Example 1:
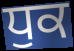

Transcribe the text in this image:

ਧੁਕ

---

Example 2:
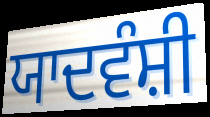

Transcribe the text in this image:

ਯਾਦਵੰਸ਼ੀ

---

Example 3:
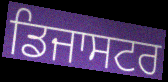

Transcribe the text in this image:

ਡਿਜਾਸਟਰ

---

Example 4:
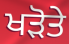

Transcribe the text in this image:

ਖੜੋਤੇ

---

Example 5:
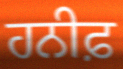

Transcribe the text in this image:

ਹਨੀਫ਼